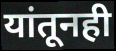
यांतूनही